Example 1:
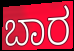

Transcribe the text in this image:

ಬಾರ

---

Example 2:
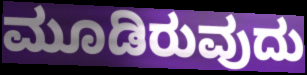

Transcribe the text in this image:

ಮೂಡಿರುವುದು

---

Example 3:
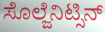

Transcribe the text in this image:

ಸೊಲ್ಜೆನಿಟ್ಸಿನ್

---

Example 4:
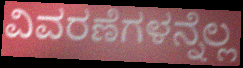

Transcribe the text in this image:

ವಿವರಣೆಗಳನ್ನೆಲ್ಲ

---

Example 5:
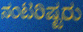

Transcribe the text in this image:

ನಂಟರಿಷ್ಟರು